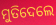
ମୁତିଦେଲେ